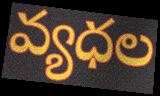
వ్యధల